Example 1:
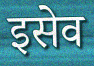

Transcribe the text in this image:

इसेव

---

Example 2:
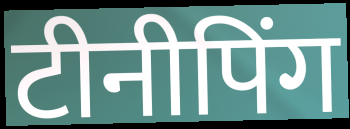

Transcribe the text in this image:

टीनीपिंग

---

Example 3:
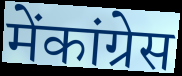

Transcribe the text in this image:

मेंकांग्रेस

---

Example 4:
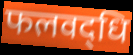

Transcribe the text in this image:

फलवद्धि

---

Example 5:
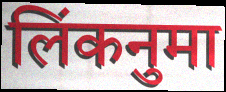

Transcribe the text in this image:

लिंकनुमा